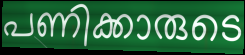
പണിക്കാരുടെ